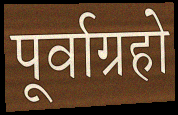
पूर्वाग्रहो